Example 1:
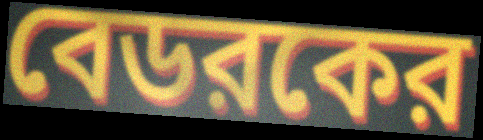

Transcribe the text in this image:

বেডরকের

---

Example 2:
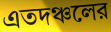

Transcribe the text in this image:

এতদঞ্চলের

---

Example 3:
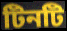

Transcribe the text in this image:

টিনটি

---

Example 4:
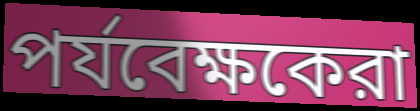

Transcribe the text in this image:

পর্যবেক্ষকেরা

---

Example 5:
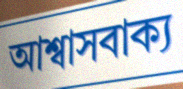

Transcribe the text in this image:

আশ্বাসবাক্য